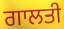
ਗਾਲਤੀ